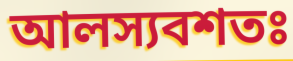
আলস্যবশতঃ